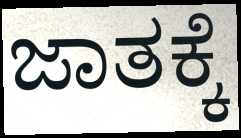
ಜಾತಕ್ಕೆ